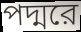
পদ্মরে